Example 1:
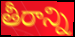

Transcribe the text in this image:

తీరాన్ని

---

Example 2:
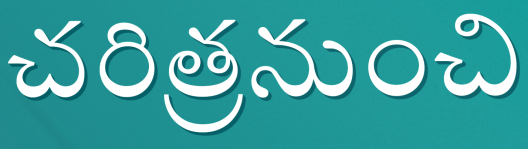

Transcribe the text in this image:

చరిత్రనుంచి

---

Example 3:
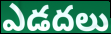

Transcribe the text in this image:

ఎడదలు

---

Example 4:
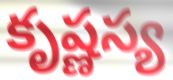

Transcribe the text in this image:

కృష్ణస్య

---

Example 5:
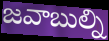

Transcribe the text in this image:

జవాబుల్ని